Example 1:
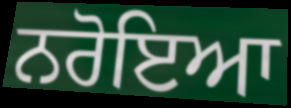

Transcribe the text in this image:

ਨਰੋਇਆ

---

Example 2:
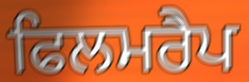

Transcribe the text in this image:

ਫਿਲਮਰੈਪ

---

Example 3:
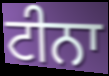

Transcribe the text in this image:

ਟੀਨਾ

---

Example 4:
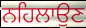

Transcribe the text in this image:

ਨਹਿਲਾਉਣ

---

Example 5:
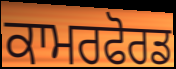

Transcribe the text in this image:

ਕਾਮਰਫੋਰਡ